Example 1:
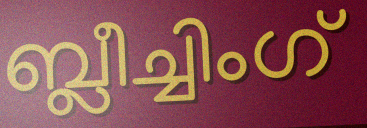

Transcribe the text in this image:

ബ്ലീച്ചിംഗ്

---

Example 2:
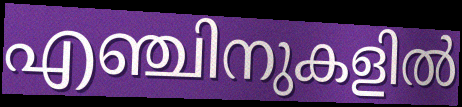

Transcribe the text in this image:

എഞ്ചിനുകളിൽ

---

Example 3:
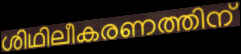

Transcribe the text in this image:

ശിഥിലീകരണത്തിന്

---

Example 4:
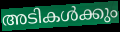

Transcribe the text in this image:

അടികൾക്കും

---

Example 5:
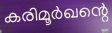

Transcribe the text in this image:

കരിമൂർഖന്റെ